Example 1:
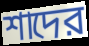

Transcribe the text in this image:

শাদের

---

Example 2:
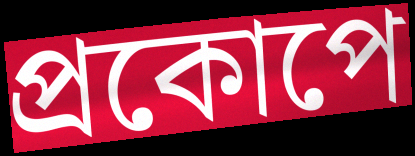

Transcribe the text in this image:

প্রকোপে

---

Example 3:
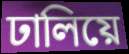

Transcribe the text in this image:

ঢালিয়ে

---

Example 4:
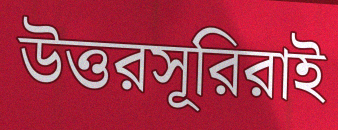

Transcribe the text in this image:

উত্তরসূরিরাই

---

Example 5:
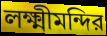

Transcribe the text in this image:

লক্ষ্মীমন্দির